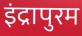
इंद्रापुरम